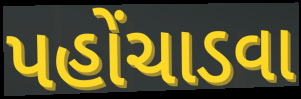
પહોંચાડવા